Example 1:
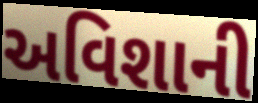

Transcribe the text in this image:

અવિશાની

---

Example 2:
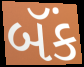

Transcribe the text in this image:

બૅંક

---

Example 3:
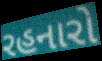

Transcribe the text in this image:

રહનારો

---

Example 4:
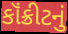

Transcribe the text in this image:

કૉંક્રીટનું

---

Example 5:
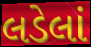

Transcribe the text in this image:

લડેલાં